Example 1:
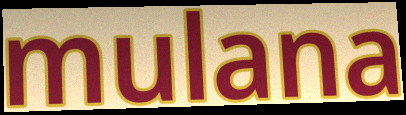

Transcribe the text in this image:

mulana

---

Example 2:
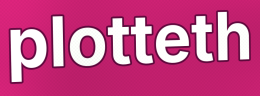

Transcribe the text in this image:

plotteth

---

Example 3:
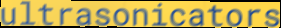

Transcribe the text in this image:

ultrasonicators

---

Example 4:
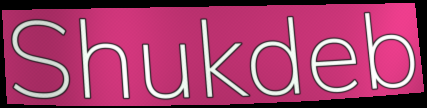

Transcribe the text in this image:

Shukdeb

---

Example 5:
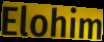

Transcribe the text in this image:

Elohim